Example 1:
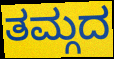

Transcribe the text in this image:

ತಮ್ಗದ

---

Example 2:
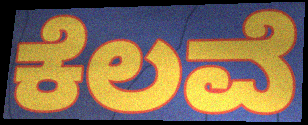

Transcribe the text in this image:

ಕೆಲವೆ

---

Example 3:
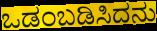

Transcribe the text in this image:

ಒಡಂಬಡಿಸಿದನು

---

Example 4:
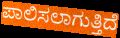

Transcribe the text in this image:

ಪಾಲಿಸಲಾಗುತ್ತಿದೆ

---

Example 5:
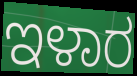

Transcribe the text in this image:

ಇಳಾರ